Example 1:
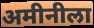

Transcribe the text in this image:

अमीनीला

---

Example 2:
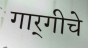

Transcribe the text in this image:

गार्गीचे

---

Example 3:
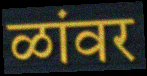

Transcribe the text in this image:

ळांवर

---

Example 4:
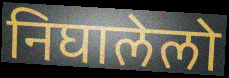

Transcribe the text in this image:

निघालेलो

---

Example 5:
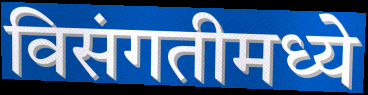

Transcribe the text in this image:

विसंगतीमध्ये